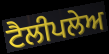
ਟੈਲੀਪਲੇਅ